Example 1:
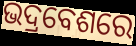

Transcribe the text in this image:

ଭଦ୍ରବେଶରେ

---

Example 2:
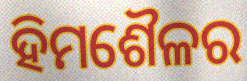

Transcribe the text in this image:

ହିମଶୈଳର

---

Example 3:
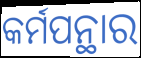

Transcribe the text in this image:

କର୍ମପନ୍ଥାର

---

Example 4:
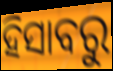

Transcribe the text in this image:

ହିସାବରୁ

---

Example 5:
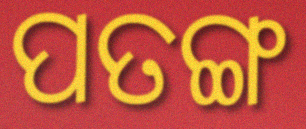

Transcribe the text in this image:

ପତଙ୍ଗ